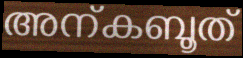
അന്കബൂത്